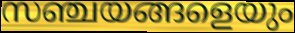
സഞ്ചയങ്ങളെയും